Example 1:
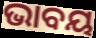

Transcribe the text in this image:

ଭାବୟ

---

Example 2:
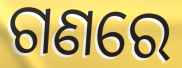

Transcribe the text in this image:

ଗଣରେ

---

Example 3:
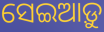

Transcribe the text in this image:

ସେଇଆଡ଼ୁ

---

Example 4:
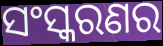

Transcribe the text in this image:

ସଂସ୍କରଣର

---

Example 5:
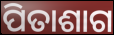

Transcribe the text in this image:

ପିତାଶାଗ